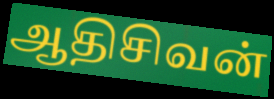
ஆதிசிவன்